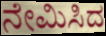
ನೇಮಿಸಿದ